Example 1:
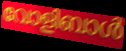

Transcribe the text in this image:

വോളിബാൾ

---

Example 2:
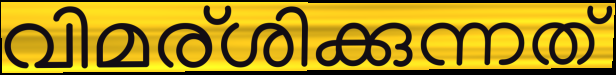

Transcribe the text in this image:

വിമര്ശിക്കുന്നത്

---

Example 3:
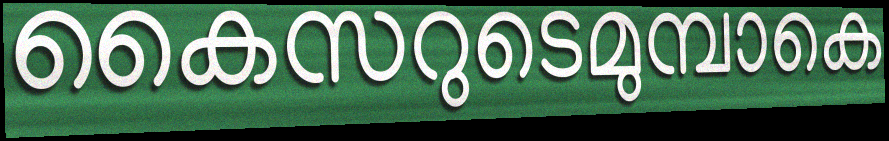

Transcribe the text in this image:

കൈസറുടെമുമ്പാകെ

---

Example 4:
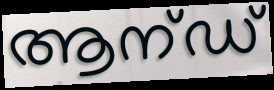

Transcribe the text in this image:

ആന്ഡ്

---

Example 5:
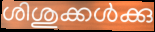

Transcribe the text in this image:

ശിശുക്കൾക്കു